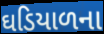
ઘડિયાળના